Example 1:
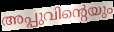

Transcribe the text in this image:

അപ്പുവിന്റെയും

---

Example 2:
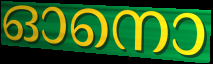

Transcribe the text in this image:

ഓനൊ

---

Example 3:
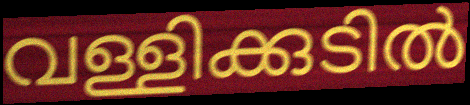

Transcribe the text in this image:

വള്ളിക്കുടിൽ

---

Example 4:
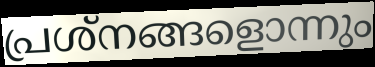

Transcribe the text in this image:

പ്രശ്നങ്ങളൊന്നും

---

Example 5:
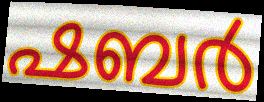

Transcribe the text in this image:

ഷബർ